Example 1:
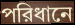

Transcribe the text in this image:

পরিধানে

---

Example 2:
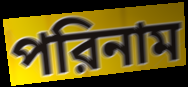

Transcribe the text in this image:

পরিনাম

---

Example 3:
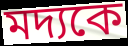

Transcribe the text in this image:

মদ্যকে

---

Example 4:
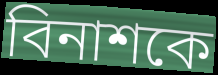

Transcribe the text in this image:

বিনাশকে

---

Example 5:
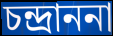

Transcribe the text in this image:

চন্দ্রাননা